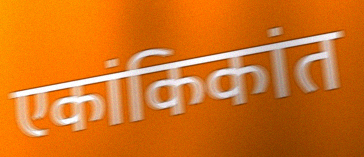
एकांकिकांत